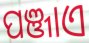
ପଞ୍ଜାଏ